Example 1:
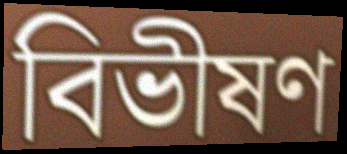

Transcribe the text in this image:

বিভীষণ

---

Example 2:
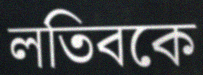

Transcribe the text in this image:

লতিবকে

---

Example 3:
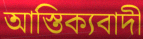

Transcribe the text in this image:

আস্তিক্যবাদী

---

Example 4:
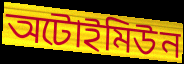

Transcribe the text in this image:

অটোইমিউন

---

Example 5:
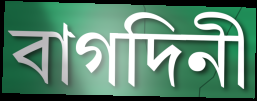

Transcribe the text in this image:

বাগদিনী